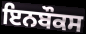
ਇਨਬੌਕਸ